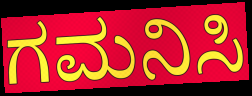
ಗಮನಿಸಿ